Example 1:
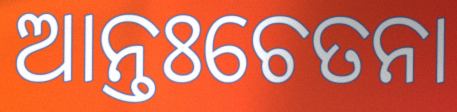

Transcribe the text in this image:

ଆନ୍ତଃଚେତନା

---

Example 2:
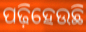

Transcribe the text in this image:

ପଢ଼ିହେଉଛି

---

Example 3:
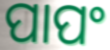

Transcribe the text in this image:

ପାପଂ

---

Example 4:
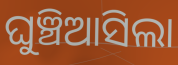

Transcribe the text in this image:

ଘୁଞ୍ଚିଆସିଲା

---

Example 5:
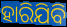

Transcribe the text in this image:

ହାରିଯିବି